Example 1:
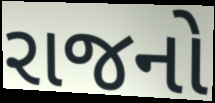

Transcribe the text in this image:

રાજનો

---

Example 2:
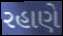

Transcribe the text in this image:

રહાણે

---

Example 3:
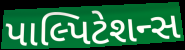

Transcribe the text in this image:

પાલ્પિટેશન્સ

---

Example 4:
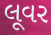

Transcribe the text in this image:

લૂવર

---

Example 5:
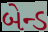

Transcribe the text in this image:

બેન્ડ